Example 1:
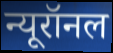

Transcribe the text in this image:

न्यूरॉनल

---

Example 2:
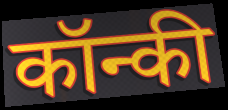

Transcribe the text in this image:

कॉन्की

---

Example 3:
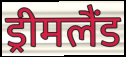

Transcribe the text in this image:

ड्रीमलैंड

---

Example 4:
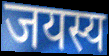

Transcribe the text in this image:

जयस्य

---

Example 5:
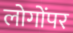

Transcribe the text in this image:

लोगोंपर